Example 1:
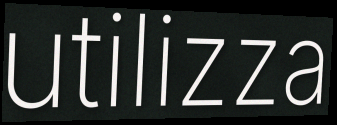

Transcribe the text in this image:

utilizza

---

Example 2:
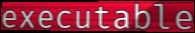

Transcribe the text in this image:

executable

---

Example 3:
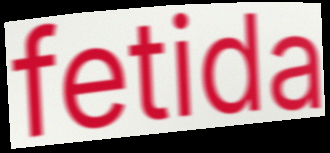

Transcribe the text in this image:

fetida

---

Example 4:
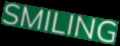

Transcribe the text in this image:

SMILING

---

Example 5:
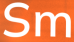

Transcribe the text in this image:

Sm